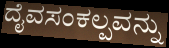
ದೈವಸಂಕಲ್ಪವನ್ನು